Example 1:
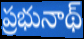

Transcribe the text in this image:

ప్రభునాథ్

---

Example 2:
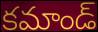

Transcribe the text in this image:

కమాండ్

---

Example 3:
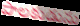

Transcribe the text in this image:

పాలకుడును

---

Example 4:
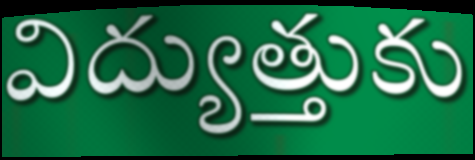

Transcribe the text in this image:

విద్యుత్తుకు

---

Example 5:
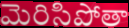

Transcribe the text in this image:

మెరిసిపోతా